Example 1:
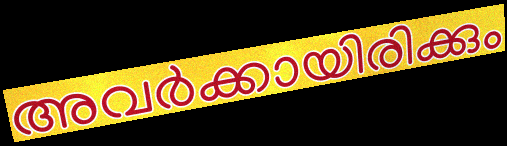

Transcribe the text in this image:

അവർക്കായിരിക്കും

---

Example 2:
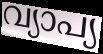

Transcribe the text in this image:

വ്യാപ്യ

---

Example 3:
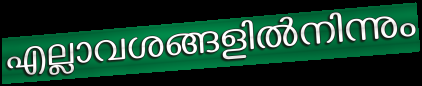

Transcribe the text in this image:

എല്ലാവശങ്ങളിൽനിന്നും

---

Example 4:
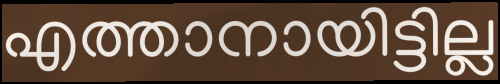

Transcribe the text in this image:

എത്താനായിട്ടില്ല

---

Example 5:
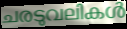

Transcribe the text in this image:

ചരടുവലികൾ